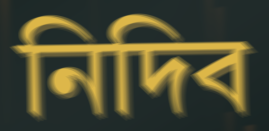
নিদিব